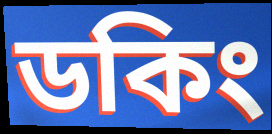
ডকিং